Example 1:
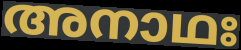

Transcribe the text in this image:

അനാഥഃ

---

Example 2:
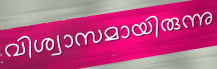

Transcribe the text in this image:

വിശ്വാസമായിരുന്നു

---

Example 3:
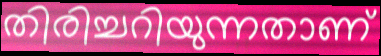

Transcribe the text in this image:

തിരിച്ചറിയുന്നതാണ്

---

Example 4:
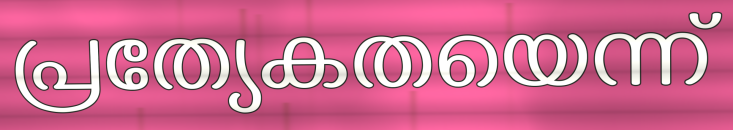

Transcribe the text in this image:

പ്രത്യേകതയെന്ന്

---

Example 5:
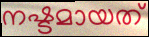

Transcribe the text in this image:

നഷ്ടമായത്